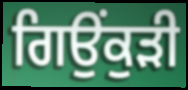
ਗਿਉਂਕੁੜੀ